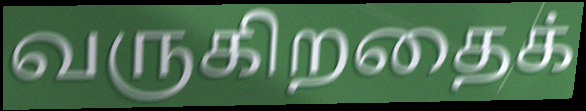
வருகிறதைக்